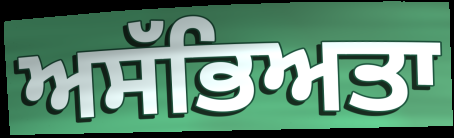
ਅਸੱਭਿਅਤਾ